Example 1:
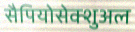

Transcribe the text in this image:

सैपियोसेक्शुअल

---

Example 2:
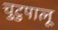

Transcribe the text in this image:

चुटुपालू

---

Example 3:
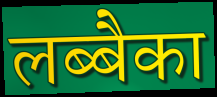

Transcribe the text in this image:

लब्बैका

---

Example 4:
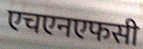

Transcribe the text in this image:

एचएनएफसी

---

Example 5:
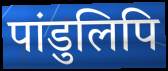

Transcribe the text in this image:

पांडुलिपि